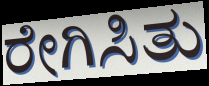
ರೇಗಿಸಿತು